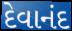
દેવાનંદ